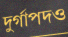
দুর্গাপদও